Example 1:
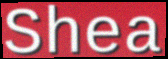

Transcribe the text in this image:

Shea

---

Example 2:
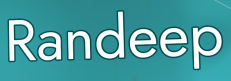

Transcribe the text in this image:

Randeep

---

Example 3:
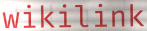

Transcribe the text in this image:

wikilink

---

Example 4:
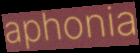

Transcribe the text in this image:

aphonia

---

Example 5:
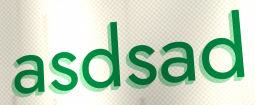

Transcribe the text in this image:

asdsad